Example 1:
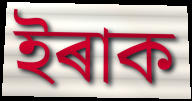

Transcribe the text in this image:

ইৰাক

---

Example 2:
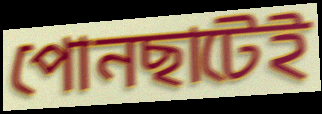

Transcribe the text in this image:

পোনছাটেই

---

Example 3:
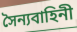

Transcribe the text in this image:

সৈন্যবাহিনী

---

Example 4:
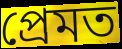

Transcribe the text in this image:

প্ৰেমত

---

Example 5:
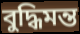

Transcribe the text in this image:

বুদ্ধিমন্ত